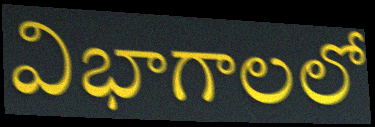
విభాగాలలో